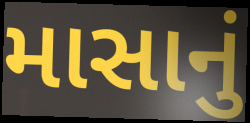
માસાનું